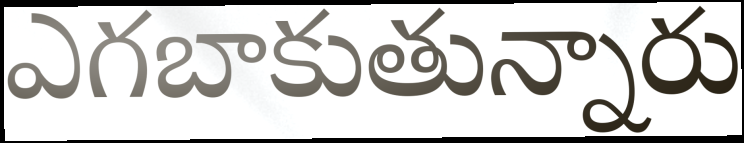
ఎగబాకుతున్నారు